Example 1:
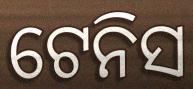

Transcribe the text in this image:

ଟେନିସ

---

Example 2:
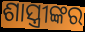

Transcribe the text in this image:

ଶାସ୍ତ୍ରୀଙ୍କର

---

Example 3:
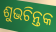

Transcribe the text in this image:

ଶୁଭଚିନ୍ତକ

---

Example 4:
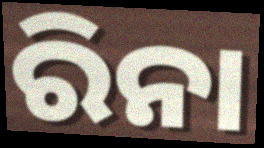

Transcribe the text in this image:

ରିନା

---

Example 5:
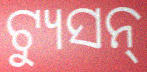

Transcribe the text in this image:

ଟ୍ୟୁସନ୍